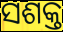
ସଶକ୍ତ